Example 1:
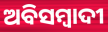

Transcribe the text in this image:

ଅବିସମ୍ବାଦୀ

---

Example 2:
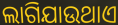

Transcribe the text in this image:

ଲାଗିଯାଉଥାଏ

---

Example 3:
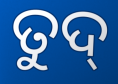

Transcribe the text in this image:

ତୁଦ୍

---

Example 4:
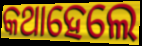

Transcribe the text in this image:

କଥାହେଲେ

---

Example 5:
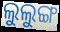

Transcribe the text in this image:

ଲୁଲୁଙ୍ଗ